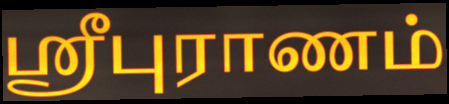
ஸ்ரீபுராணம்